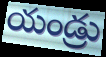
యండ్రు